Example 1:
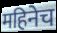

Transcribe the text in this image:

महिनेच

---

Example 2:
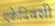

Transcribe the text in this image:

एकेदिवशी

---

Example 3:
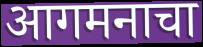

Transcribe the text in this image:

आगमनाचा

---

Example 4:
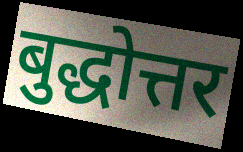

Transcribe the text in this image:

बुद्धोत्तर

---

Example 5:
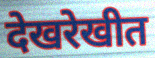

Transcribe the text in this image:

देखरेखीत